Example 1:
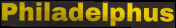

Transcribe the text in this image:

Philadelphus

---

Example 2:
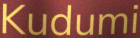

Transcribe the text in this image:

Kudumi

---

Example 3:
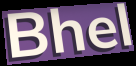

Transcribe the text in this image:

Bhel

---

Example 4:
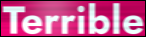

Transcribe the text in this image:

Terrible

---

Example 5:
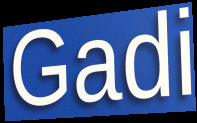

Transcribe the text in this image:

Gadi